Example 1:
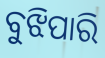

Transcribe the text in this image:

ବୁଝିପାରି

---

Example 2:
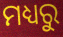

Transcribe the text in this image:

ମଧ୍ୟରୁ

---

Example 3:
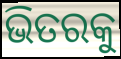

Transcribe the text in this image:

ଭିତରକୁ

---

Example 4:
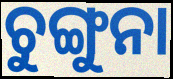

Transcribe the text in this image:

ଚୁଙ୍ଗୁନା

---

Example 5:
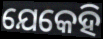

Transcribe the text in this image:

ଯେକେହି